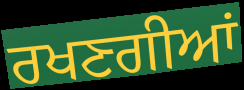
ਰਖਣਗੀਆਂ